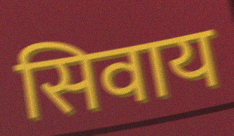
सिवाय